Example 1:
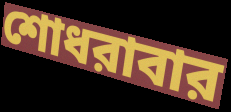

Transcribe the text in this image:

শোধরাবার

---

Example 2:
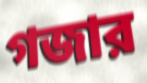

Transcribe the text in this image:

গজার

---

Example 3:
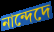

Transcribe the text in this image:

নান্দেদে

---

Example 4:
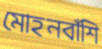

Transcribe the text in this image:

মোহনবাঁশি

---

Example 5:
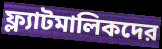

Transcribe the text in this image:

ফ্ল্যাটমালিকদের